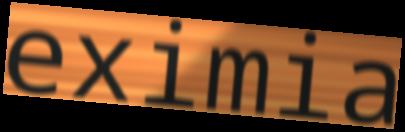
eximia